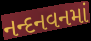
નન્દનવનમાં